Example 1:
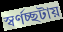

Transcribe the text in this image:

স্বর্ণচ্ছটায়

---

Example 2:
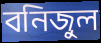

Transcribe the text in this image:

বনিজুল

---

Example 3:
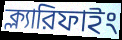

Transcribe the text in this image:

ক্ল্যারিফাইং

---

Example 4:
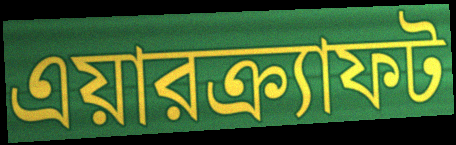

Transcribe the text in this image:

এয়ারক্র্যাফট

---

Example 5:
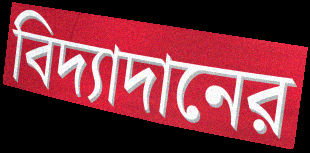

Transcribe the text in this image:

বিদ্যাদানের